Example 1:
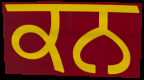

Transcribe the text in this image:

ਕਨ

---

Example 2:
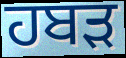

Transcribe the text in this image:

ਹਬੜ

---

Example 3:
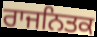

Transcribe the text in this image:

ਰਾਜਨਿਤਕ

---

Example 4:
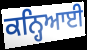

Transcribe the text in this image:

ਕਨ੍ਹਿਆਈ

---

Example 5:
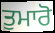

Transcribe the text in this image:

ਤੁਮਾਰੋ